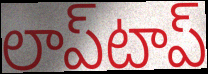
లాప్‌టాప్